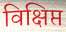
विक्षिप्त